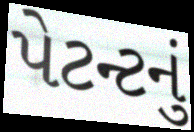
પેટન્ટનું